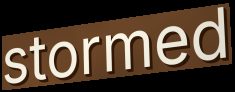
stormed